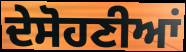
ਦੇਸੋਹਣੀਆਂ